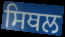
ਸਿਥਲ